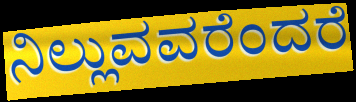
ನಿಲ್ಲುವವರೆಂದರೆ